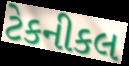
ટેકનીકલ